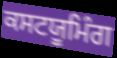
ਕਸਟਯੂਮਿੰਗ